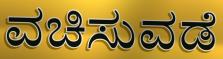
ವಚಿಸುವಡೆ